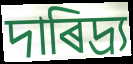
দাৰিদ্ৰ্য